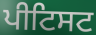
ਪੀਟਿਸਟ